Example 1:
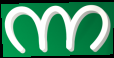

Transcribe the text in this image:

ന്ന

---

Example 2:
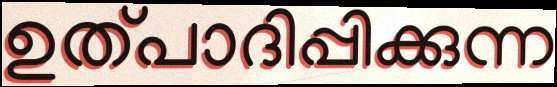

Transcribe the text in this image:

ഉത്പാദിപ്പിക്കുന്ന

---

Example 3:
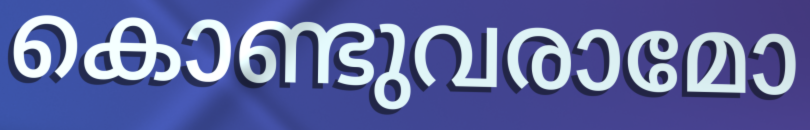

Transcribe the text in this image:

കൊണ്ടുവരാമോ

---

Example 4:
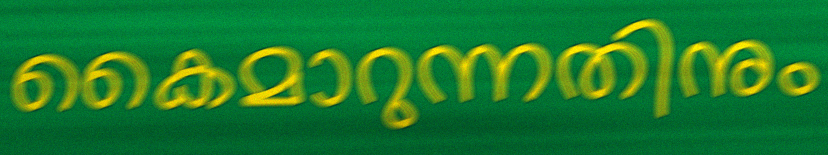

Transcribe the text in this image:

കൈമാറുന്നതിനും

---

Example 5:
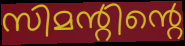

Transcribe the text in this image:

സിമന്റിന്റെ